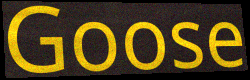
Goose